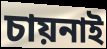
চায়নাই